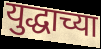
युद्धाच्या